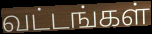
வட்டங்கள்